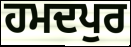
ਹਮਦਪੁਰ